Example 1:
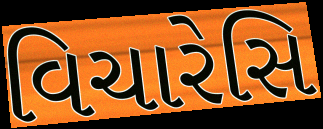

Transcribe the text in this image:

વિચારેસિ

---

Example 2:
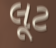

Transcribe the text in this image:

લૂટ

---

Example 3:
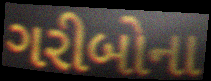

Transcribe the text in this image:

ગરીબોના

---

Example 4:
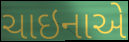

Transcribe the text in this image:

ચાઇનાએ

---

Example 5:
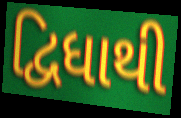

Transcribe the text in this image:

દ્વિધાથી